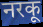
नरकू